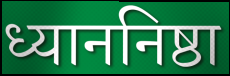
ध्याननिष्ठा